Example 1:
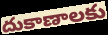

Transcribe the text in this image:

దుకాణాలకు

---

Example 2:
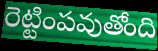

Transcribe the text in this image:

రెట్టింపవుతోంది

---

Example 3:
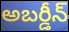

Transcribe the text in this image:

అబర్డీన్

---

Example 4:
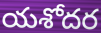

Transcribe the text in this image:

యశోదర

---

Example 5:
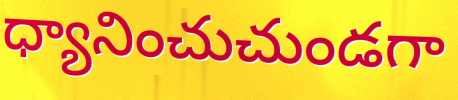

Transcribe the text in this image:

ధ్యానించుచుండగా